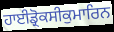
ਹਾਈਡ੍ਰੋਕਸੀਕੁਮਾਰਿਨ